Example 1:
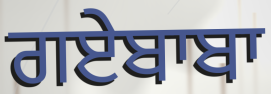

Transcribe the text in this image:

ਗਏਬਾਬਾ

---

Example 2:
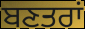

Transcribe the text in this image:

ਬਣਤਰਾਂ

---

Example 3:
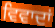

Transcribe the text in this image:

ਵਿਵਾਦਾਂ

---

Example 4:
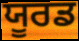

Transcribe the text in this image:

ਯੂਰਡ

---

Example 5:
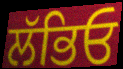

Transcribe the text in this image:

ਲੱਭਿਓ